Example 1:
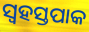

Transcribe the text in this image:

ସ୍ୱହସ୍ତପାକ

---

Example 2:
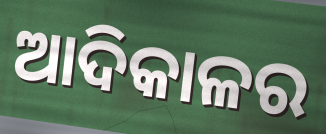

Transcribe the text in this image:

ଆଦିକାଳର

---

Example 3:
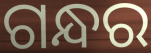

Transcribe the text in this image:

ଗନ୍ଧର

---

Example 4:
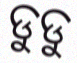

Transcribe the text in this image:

ଡୁଡୁ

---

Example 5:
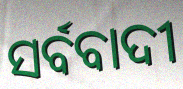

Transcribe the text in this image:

ସର୍ବବାଦୀ